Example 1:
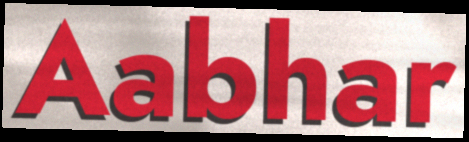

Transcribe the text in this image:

Aabhar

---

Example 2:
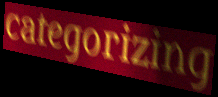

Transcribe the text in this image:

categorizing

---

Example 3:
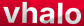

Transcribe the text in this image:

vhalo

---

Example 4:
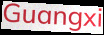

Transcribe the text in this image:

Guangxi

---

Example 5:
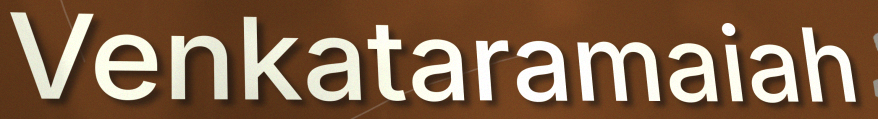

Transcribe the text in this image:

Venkataramaiah